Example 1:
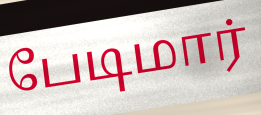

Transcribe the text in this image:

பேடிமார்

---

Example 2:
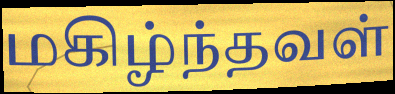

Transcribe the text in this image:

மகிழ்ந்தவள்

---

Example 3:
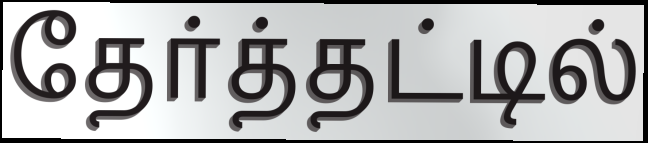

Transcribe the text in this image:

தேர்த்தட்டில்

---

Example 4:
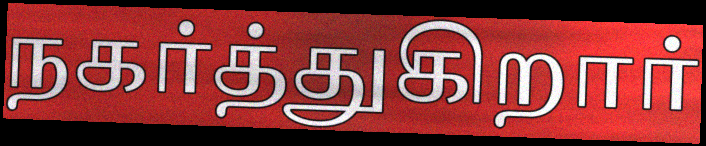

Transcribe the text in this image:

நகர்த்துகிறார்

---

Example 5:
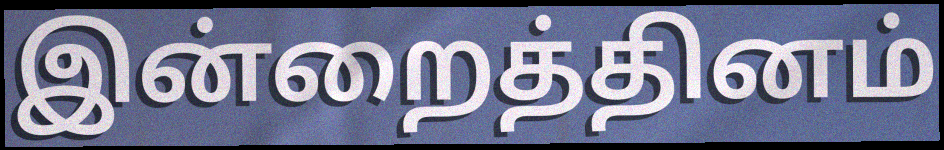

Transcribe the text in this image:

இன்றைத்தினம்